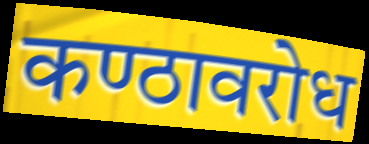
कण्ठावरोध